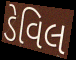
ડેવિલ